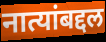
नात्यांबद्दल